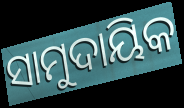
ସାମୁଦାୟିକ